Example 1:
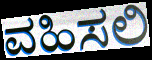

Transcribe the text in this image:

ವಹಿಸಲಿ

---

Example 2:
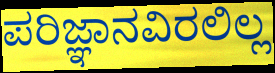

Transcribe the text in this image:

ಪರಿಜ್ಞಾನವಿರಲಿಲ್ಲ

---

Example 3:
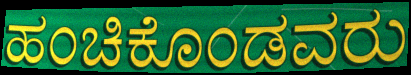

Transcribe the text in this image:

ಹಂಚಿಕೊಂಡವರು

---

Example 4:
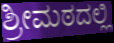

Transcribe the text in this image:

ಶ್ರೀಮಠದಲ್ಲಿ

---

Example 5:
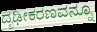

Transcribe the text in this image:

ದೃಢೀಕರಣವನ್ನೂ